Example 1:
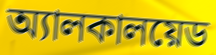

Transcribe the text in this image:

অ্যালকালয়েড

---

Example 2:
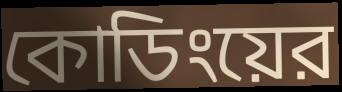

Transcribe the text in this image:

কোডিংয়ের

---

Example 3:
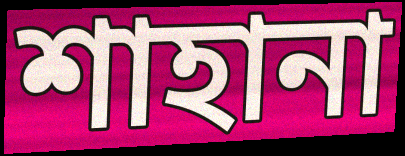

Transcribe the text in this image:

শাহানা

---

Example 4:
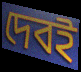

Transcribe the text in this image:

দেবই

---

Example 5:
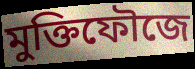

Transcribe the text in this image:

মুক্তিফৌজে